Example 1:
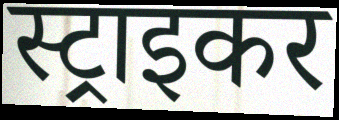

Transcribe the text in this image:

स्ट्राइकर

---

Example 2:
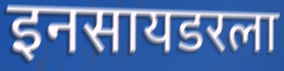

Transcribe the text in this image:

इनसायडरला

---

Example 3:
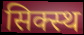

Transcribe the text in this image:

सिक्स्थ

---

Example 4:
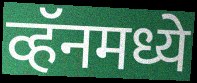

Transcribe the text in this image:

व्हॅनमध्ये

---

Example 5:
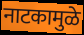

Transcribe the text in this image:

नाटकामुळे